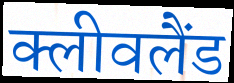
क्‍लीवलैंड